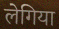
लेगिया